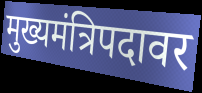
मुख्यमंत्रिपदावर